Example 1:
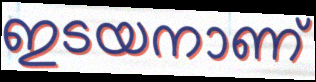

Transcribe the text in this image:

ഇടയനാണ്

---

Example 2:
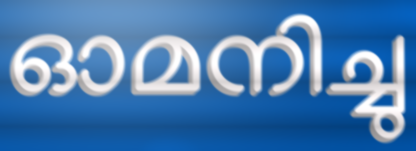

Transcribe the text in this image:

ഓമനിച്ചു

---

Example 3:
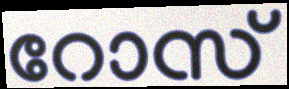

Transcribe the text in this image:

റോസ്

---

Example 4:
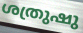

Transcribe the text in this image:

ശത്രുഷു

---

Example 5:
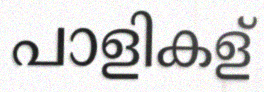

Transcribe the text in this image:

പാളികള്